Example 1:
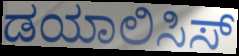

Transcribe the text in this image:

ಡಯಾಲಿಸಿಸ್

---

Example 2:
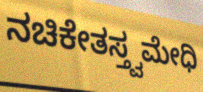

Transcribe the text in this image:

ನಚಿಕೇತಸ್ತ್ವಮೇಧಿ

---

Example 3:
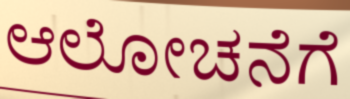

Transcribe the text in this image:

ಆಲೋಚನೆಗೆ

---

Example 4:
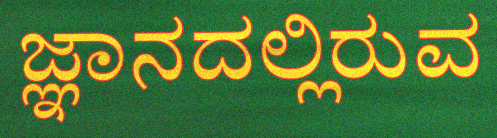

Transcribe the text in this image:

ಜ್ಞಾನದಲ್ಲಿರುವ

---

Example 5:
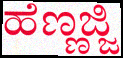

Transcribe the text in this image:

ಹೆಣ್ಣಜ್ಜಿ